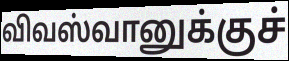
விவஸ்வானுக்குச்